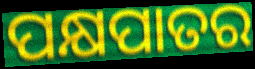
ପକ୍ଷପାତର